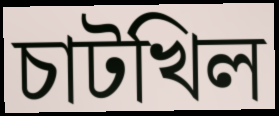
চাটখিল